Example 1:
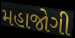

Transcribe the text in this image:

મહાજોગી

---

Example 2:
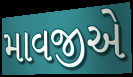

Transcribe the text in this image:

માવજીએ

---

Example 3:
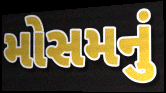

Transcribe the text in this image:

મોસમનું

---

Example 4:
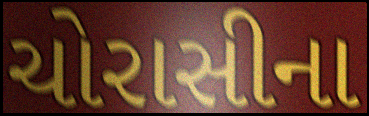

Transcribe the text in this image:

ચોરાસીના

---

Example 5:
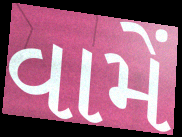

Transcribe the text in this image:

વામેં